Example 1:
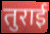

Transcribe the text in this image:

तुराई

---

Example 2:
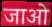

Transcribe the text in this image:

जाओ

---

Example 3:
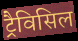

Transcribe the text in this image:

ट्रैविसिल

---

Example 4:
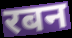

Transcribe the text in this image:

रबन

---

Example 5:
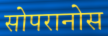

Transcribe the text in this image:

सोपरानोस